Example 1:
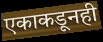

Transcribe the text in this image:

एकाकडूनही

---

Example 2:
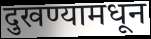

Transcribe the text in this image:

दुखण्यामधून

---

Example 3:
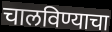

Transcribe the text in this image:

चालविण्याचा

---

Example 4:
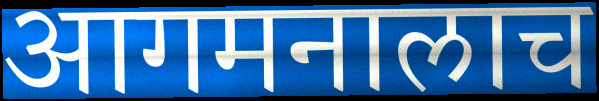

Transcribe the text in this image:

आगमनालाच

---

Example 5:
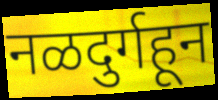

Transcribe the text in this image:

नळदुर्गहून